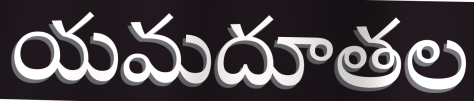
యమదూతల